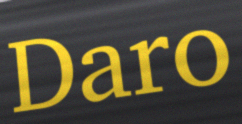
Daro